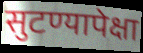
सुटण्यापेक्षा